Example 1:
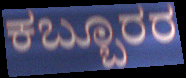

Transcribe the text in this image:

ಕಬ್ಬೂರರ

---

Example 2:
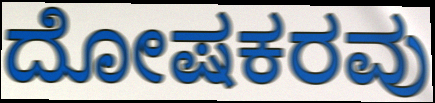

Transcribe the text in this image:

ದೋಷಕರವು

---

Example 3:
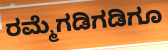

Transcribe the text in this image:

ರಮ್ಮೆಗಡಿಗಡಿಗೂ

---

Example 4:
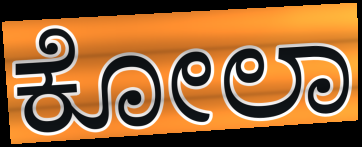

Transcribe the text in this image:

ಕೋಲಾ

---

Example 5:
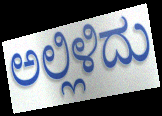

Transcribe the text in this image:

ಅಲ್ಲಿಳಿದು